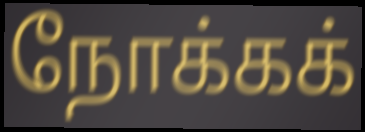
நோக்கக்